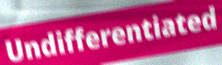
Undifferentiated